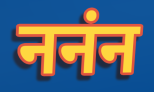
ननंन